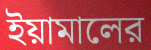
ইয়ামালের